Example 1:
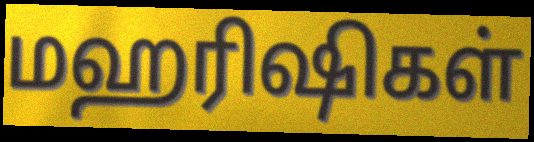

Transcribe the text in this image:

மஹரிஷிகள்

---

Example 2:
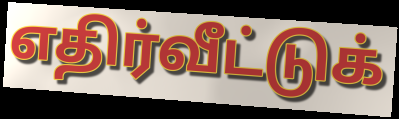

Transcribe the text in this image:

எதிர்வீட்டுக்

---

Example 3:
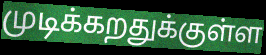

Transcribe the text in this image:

முடிக்கறதுக்குள்ள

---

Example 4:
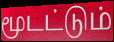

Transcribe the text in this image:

மூடட்டும்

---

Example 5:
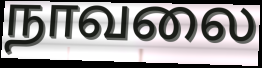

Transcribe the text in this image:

நாவலை